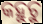
କହୁଚୁ